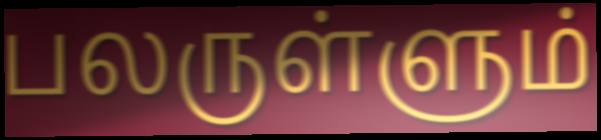
பலருள்ளும்